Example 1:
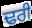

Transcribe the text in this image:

ਢਰੀ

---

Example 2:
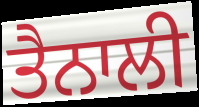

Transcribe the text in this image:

ਤੈਨਾਲੀ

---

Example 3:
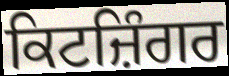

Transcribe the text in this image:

ਕਿਟਜ਼ਿੰਗਰ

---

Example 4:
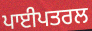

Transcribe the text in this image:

ਪਾਈਪਤਰਲ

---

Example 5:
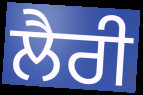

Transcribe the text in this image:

ਲੈਰੀ